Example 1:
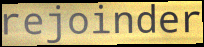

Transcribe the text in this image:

rejoinder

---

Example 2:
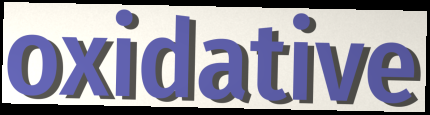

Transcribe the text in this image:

oxidative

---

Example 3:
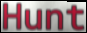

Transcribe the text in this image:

Hunt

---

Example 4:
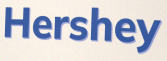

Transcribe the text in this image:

Hershey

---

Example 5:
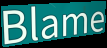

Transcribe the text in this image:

Blame